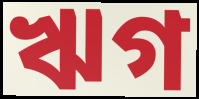
ঋগ